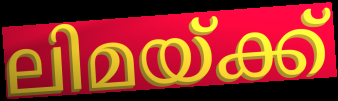
ലിമയ്ക്ക്